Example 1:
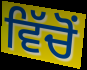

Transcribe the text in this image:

ਵਿੱਚੋੰ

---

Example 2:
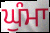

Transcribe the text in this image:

ਘੁੰਮਾ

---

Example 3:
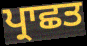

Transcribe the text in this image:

ਪ੍ਰਾਛਤ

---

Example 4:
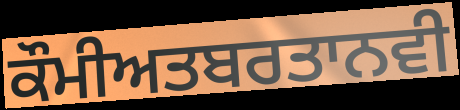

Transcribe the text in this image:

ਕੌਮੀਅਤਬਰਤਾਨਵੀ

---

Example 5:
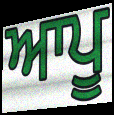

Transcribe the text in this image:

ਆਪੂ